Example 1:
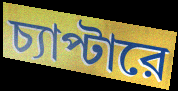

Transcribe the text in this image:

চ্যাপ্টারে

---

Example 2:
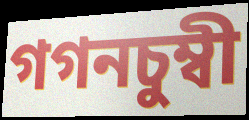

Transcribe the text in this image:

গগনচুম্বী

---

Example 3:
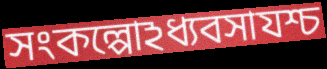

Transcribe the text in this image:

সংকল্পোঽধ্যবসাযশ্চ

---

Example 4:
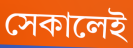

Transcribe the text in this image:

সেকালেই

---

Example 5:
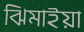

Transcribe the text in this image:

ঝিমাইয়া